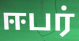
ஈபர்